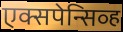
एक्सपेन्सिव्ह